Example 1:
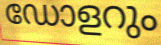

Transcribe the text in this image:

ഡോളറും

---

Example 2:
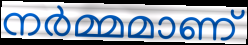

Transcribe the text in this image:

നർമ്മമാണ്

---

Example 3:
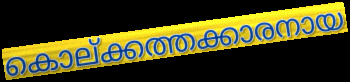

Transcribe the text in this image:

കൊല്ക്കത്തക്കാരനായ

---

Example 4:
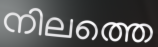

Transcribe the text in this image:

നിലത്തെ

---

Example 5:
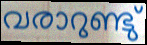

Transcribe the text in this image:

വരാറുണ്ടു്